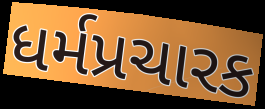
ધર્મપ્રચારક